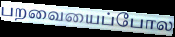
பறவையைப்போல